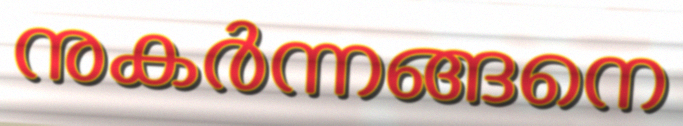
നുകർന്നങ്ങനെ